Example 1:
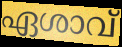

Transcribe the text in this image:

ഏശാവ്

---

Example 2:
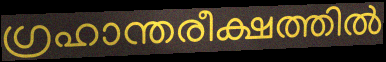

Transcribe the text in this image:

ഗ്രഹാന്തരീക്ഷത്തിൽ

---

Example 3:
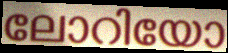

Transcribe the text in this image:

ലോറിയോ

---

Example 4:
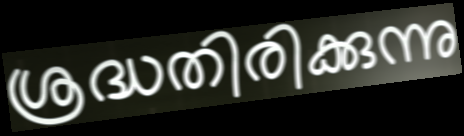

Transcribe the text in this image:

ശ്രദ്ധതിരിക്കുന്നു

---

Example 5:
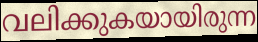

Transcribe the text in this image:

വലിക്കുകയായിരുന്ന